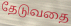
தேடுவதை